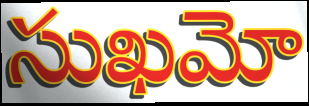
సుఖమో